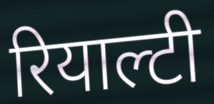
रियाल्टी